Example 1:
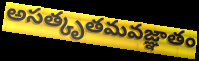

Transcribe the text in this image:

అసత్కృతమవజ్ఞాతం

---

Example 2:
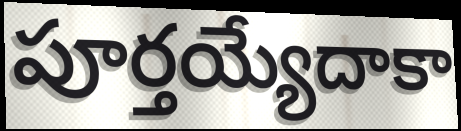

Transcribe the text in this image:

పూర్తయ్యేదాకా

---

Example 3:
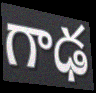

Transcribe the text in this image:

గాఢ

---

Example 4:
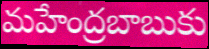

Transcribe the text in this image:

మహేంద్రబాబుకు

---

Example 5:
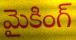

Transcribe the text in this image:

మైకింగ్